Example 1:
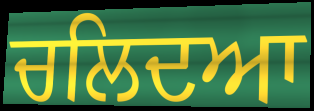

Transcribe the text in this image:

ਚਲਿਦਆ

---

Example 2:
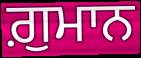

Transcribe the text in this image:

ਗ਼ੁਮਾਨ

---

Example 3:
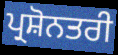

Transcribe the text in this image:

ਪ੍ਰਸ਼ੋਨਤਰੀ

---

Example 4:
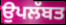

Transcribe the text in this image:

ਉਪਲੱਬਤ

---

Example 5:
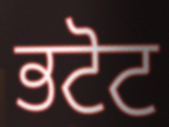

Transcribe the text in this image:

ਭਟੋਟ